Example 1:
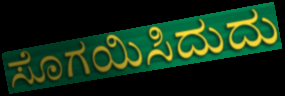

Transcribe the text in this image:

ಸೊಗಯಿಸಿದುದು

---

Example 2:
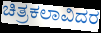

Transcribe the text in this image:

ಚಿತ್ರಕಲಾವಿದರ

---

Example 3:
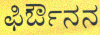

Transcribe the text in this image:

ಫಿರ್ಔನನ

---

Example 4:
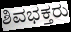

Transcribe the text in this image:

ಶಿವಭಕ್ತರು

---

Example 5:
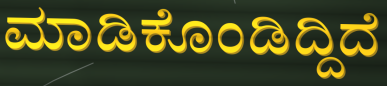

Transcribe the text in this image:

ಮಾಡಿಕೊಂಡಿದ್ದಿದೆ